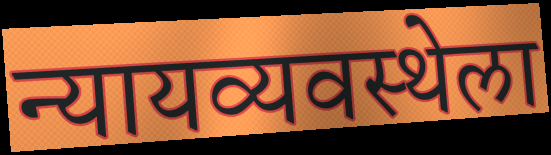
न्यायव्यवस्थेला